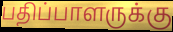
பதிப்பாளருக்கு